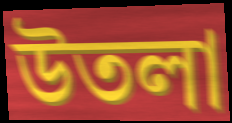
উতলা